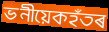
ভনীয়েকহঁতৰ